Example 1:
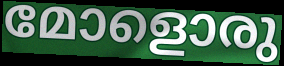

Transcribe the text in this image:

മോളൊരു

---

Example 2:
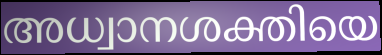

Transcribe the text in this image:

അധ്വാനശക്തിയെ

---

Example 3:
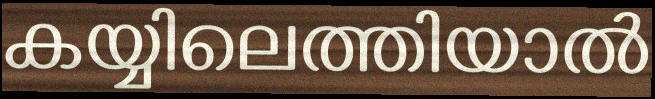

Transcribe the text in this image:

കയ്യിലെത്തിയാൽ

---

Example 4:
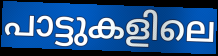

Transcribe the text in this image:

പാട്ടുകളിലെ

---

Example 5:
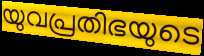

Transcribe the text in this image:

യുവപ്രതിഭയുടെ